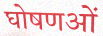
घोषणओं